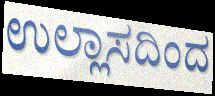
ಉಲ್ಲಾಸದಿಂದ